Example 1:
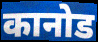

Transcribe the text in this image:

कानोड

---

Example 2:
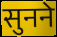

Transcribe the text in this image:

सुनने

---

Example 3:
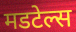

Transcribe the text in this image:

मडटेल्स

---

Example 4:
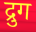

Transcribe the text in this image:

द्रुग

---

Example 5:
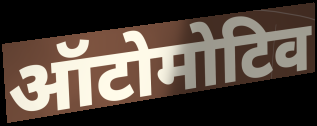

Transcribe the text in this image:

ऑटोमोटिव